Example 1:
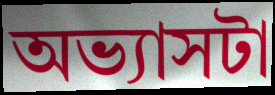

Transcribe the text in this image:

অভ্যাসটা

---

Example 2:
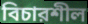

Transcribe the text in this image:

বিচারশীল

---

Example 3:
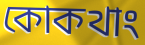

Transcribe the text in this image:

কোকথাং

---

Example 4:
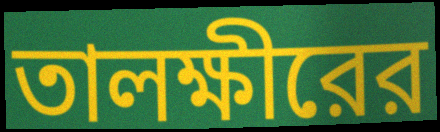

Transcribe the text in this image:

তালক্ষীরের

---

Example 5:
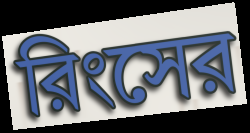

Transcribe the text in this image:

রিংসের